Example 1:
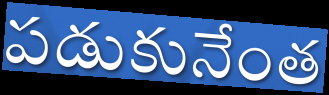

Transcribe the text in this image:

పడుకునేంత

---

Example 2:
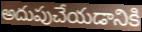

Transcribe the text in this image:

అదుపుచేయడానికి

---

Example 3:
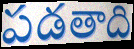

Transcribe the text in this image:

పడతాది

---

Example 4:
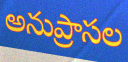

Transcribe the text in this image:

అనుప్రాసల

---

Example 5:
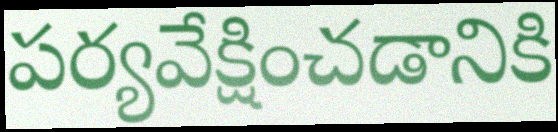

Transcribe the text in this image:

పర్యవేక్షించడానికి